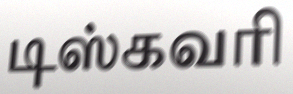
டிஸ்கவரி